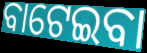
ବାଟେଇବା